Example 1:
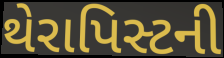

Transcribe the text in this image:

થેરાપિસ્ટની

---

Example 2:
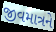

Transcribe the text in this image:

જીવમાત્રને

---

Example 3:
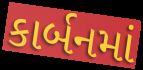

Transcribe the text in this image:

કાર્બનમાં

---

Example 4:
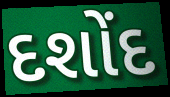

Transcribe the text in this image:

દશોંદ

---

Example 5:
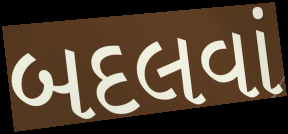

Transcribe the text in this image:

બદલવાં